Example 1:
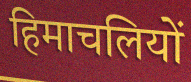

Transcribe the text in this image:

हिमाचलियों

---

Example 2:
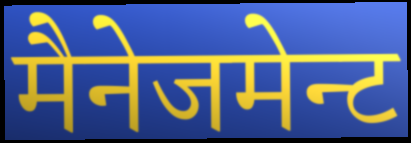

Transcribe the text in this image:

मैनेजमेन्ट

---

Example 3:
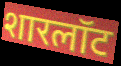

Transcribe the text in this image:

शारलॉट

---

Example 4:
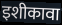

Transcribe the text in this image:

इशीकावा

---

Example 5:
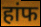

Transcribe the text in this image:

हांफ